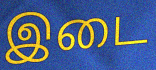
இடை